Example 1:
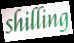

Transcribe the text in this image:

shilling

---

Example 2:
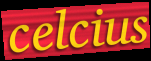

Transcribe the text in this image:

celcius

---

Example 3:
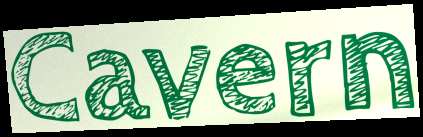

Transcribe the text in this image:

Cavern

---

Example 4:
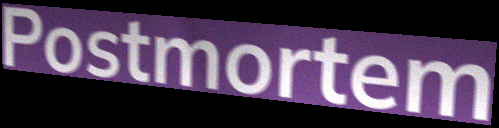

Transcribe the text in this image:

Postmortem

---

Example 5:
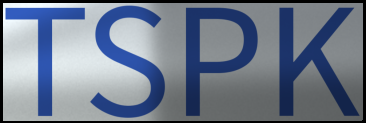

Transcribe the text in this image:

TSPK